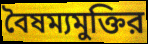
বৈষম্যমুক্তির